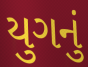
યુગનું